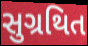
સુગ્રથિત